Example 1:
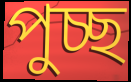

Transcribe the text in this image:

পুচ্ছ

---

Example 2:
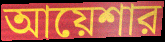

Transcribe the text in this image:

আয়েশার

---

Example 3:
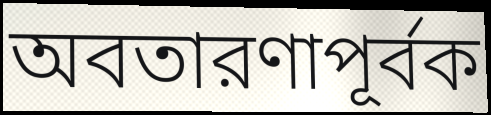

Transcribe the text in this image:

অবতারণাপূর্বক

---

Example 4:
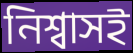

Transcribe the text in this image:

নিশ্বাসই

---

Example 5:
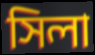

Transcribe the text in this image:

সিলা